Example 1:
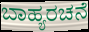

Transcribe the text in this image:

ಬಾಹ್ಯರಚನೆ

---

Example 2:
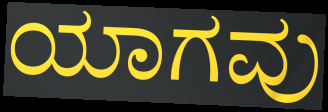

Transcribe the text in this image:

ಯಾಗವು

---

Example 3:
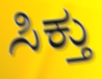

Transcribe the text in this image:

ಸಿಕ್ತು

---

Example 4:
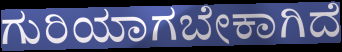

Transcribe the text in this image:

ಗುರಿಯಾಗಬೇಕಾಗಿದೆ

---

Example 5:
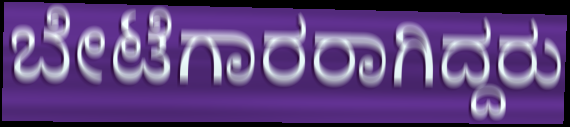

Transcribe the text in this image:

ಬೇಟೆಗಾರರಾಗಿದ್ದರು